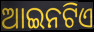
ଆଇନଟିଏ